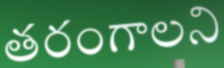
తరంగాలని